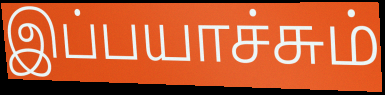
இப்பயாச்சும்